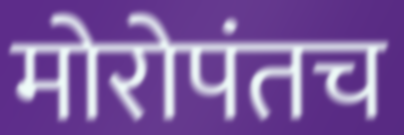
मोरोपंतच